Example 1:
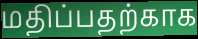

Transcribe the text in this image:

மதிப்பதற்காக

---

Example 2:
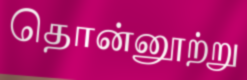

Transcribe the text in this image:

தொன்னூற்று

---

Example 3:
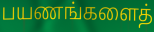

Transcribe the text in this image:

பயணங்களைத்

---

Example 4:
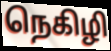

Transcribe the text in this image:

நெகிழி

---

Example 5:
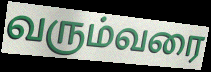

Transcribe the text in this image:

வரும்வரை